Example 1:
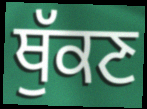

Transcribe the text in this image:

ਥੁੱਕਣ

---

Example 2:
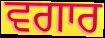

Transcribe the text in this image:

ਵਗਾਰ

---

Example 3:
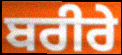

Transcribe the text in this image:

ਬਰੀਰੇ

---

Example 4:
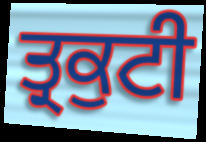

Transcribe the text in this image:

ਤ੍ਰਕੁਟੀ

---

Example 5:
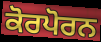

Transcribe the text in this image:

ਕੋਰਪੋਰਨ